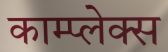
काम्प्लेक्स